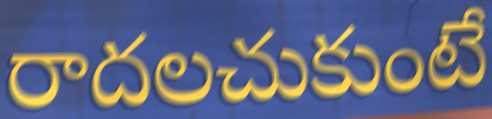
రాదలచుకుంటే